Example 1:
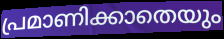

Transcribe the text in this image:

പ്രമാണിക്കാതെയും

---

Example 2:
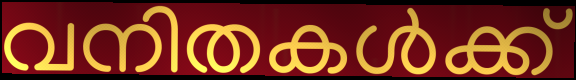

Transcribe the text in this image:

വനിതകൾക്ക്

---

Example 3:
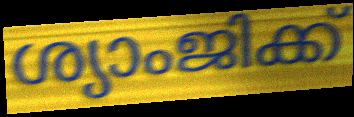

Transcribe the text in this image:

ശ്യാംജിക്ക്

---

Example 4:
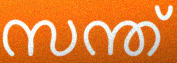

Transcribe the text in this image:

സന്ത്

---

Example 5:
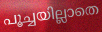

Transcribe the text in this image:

പൂച്ചയില്ലാതെ